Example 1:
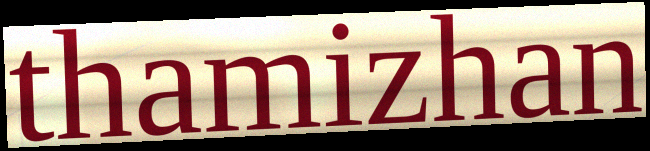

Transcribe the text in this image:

thamizhan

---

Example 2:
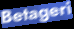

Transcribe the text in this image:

Betageri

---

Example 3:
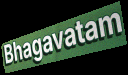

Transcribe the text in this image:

Bhagavatam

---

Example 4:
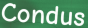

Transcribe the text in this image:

Condus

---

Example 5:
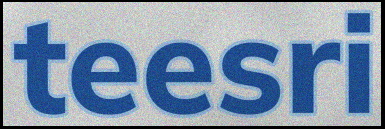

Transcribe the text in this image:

teesri